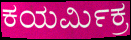
ಕಯರ್ಮಿಕ್ರ